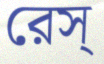
রেস্